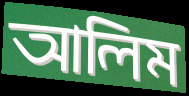
আলিম